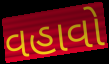
વહાવો